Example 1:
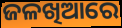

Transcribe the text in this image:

ଜଳଖିଆରେ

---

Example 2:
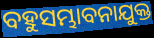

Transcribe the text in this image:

ବହୁସମ୍ଭାବନାଯୁକ୍ତ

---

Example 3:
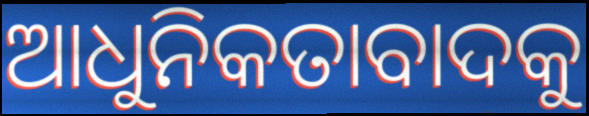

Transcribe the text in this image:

ଆଧୁନିକତାବାଦକୁ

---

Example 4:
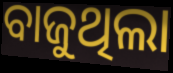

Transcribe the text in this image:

ବାଜୁଥିଲା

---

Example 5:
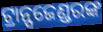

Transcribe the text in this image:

ଟ୍ରାନ୍ସଜେଣ୍ଡରଙ୍କ